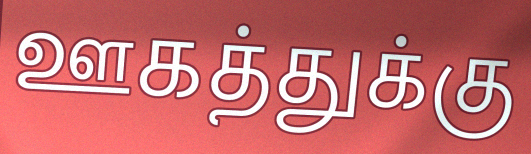
ஊகத்துக்கு